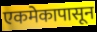
एकमेकापासून